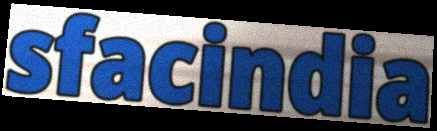
sfacindia